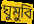
ঘুমুবি